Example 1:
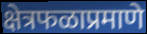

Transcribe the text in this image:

क्षेत्रफळाप्रमाणे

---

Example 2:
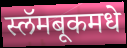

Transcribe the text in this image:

स्लॅमबूकमधे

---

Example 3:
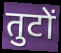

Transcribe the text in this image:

तुटों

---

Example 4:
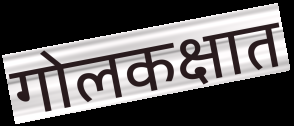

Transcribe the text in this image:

गोलकक्षात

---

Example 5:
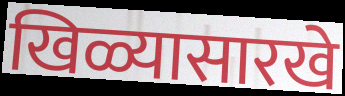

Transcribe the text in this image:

खिळ्यासारखे